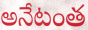
అనేటంత